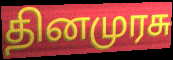
தினமுரசு